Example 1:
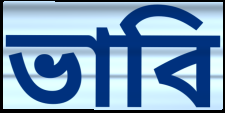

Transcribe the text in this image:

ভাবি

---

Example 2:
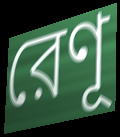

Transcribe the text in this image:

রেণূ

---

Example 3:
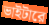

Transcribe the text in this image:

ভাইটারে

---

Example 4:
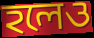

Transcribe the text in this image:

হলেও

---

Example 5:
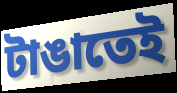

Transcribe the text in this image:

টাঙাতেই